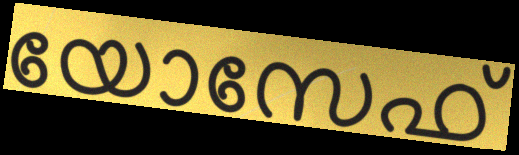
യോസേഫ്